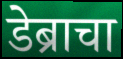
डेब्राचा